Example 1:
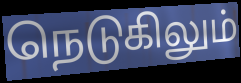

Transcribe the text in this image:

நெடுகிலும்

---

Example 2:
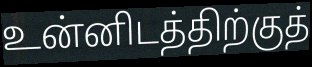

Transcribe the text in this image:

உன்னிடத்திற்குத்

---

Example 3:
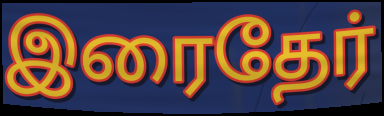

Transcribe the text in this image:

இரைதேர்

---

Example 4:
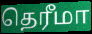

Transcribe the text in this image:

தெரீமா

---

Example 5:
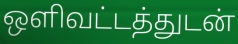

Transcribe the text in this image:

ஒளிவட்டத்துடன்